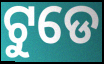
ଟୁଡେ